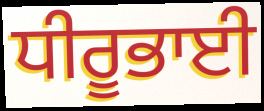
ਧੀਰੂਭਾਈ